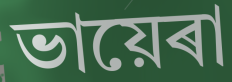
ভায়েৰা